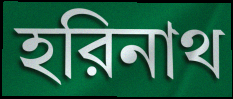
হরিনাথ